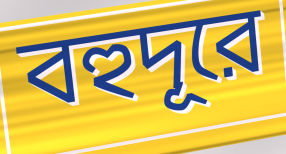
বহুদূরে